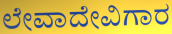
ಲೇವಾದೇವಿಗಾರ